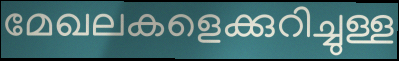
മേഖലകളെക്കുറിച്ചുള്ള